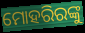
ମୋହରିରଙ୍କୁ